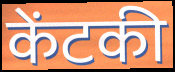
केंटकी